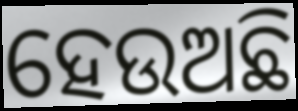
ହେଉଅଛି